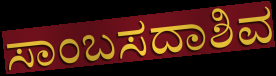
ಸಾಂಬಸದಾಶಿವ